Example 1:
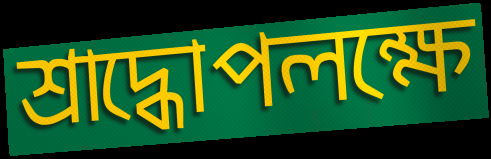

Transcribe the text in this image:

শ্রাদ্ধোপলক্ষে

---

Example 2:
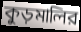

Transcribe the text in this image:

কুড়মালির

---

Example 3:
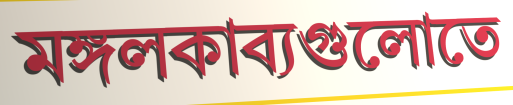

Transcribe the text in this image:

মঙ্গলকাব্যগুলোতে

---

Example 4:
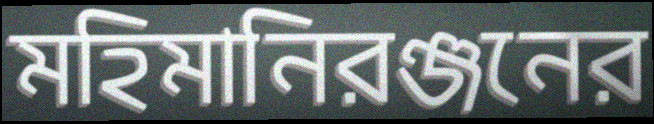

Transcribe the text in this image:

মহিমানিরঞ্জনের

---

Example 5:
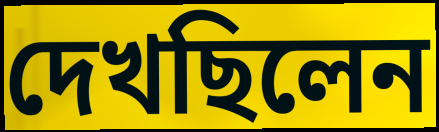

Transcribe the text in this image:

দেখছিলেন